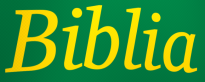
Biblia